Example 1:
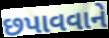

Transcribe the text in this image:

છપાવવાને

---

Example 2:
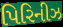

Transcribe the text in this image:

પિરિનીઝ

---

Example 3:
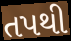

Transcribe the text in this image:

તપથી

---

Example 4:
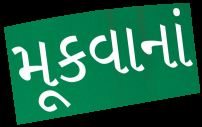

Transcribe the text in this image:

મૂકવાનાં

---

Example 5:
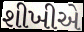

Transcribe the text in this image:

શીખીએ